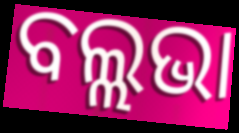
ବଲ୍ଲଭା